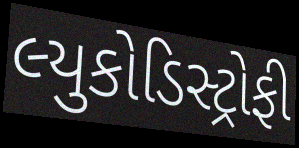
લ્યુકોડિસ્ટ્રોફી